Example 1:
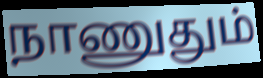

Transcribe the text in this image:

நாணுதும்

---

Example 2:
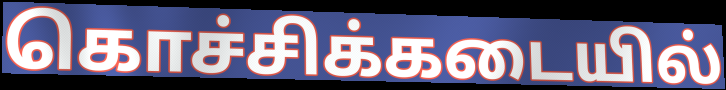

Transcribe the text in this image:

கொச்சிக்கடையில்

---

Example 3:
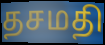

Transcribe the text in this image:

தசமதி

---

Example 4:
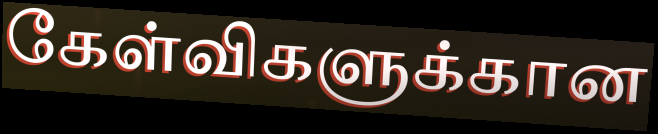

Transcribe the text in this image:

கேள்விகளுக்கான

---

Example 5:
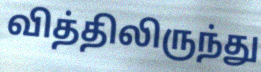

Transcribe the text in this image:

வித்திலிருந்து